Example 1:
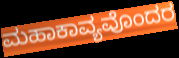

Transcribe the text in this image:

ಮಹಾಕಾವ್ಯವೊಂದರ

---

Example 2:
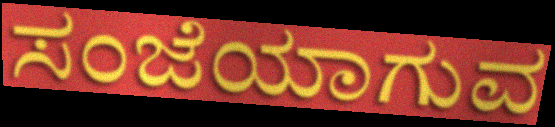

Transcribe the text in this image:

ಸಂಜೆಯಾಗುವ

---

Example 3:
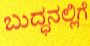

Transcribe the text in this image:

ಬುದ್ಧನಲ್ಲಿಗೆ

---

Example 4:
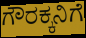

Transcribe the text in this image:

ಗೌರಕ್ಕನಿಗೆ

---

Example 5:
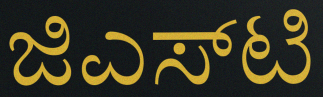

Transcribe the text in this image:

ಜಿಎಸ್‌ಟಿ